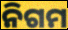
ନିଗମ